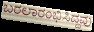
ಬರಲಾರಂಭಿಸಿದ್ದವು